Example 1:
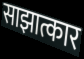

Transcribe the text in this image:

साझात्कार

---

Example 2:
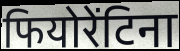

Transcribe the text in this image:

फियोरेंटिना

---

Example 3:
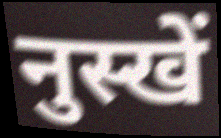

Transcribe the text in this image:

नुस्खें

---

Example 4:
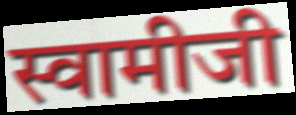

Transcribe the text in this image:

स्‍वामीजी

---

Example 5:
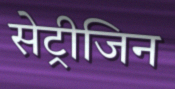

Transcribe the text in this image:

सेट्रीजिन